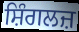
ਸ਼ਿੰਗਲਜ਼